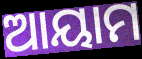
ଆୟାମ